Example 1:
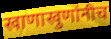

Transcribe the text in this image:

खाणाखुणांनीच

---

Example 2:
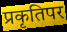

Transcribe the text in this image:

प्रकृतिपर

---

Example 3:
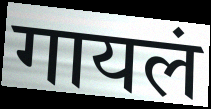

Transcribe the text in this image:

गायलं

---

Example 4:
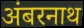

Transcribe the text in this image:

अंबरनाथ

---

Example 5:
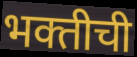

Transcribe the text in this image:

भक्‍तीची